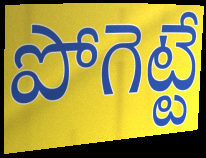
పోగెట్టే